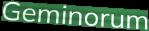
Geminorum